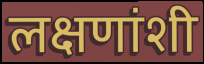
लक्षणांशी